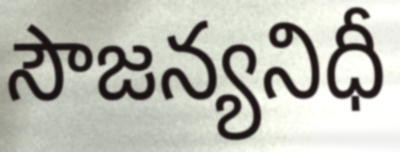
సౌజన్యనిధీ